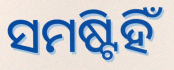
ସମଷ୍ଟିହିଁ